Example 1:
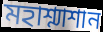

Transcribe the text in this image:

মহাশ্মাশান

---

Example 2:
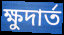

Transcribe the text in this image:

ক্ষুদার্ত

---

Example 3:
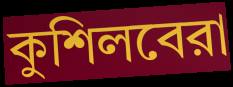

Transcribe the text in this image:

কুশিলবেরা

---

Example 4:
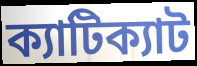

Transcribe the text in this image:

ক্যাটিক্যাট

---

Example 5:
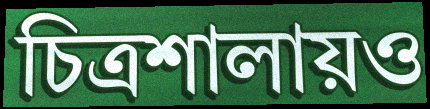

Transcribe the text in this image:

চিত্রশালায়ও